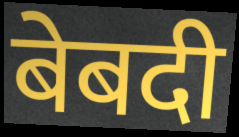
बेबदी